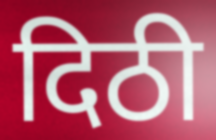
दिठी